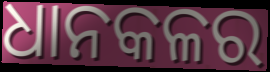
ଧାନକଳର